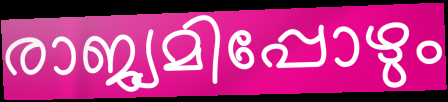
രാജ്യമിപ്പോഴും